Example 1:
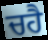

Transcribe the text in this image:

ਚਹੈ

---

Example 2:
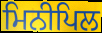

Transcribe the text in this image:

ਮਿਨੀਪਿਲ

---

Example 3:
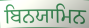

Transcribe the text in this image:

ਬਿਨਯਾਮਿਨ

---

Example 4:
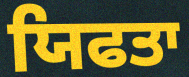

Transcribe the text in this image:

ਯਿਫਤਾ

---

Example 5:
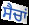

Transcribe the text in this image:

ਸੈਚਾਂ